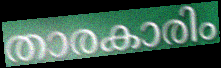
താരകാരിം